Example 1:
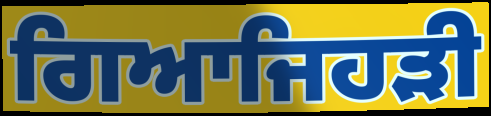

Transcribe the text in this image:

ਗਿਆਜਿਹੜੀ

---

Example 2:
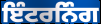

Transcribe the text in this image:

ਇੰਟਰਨਿੰਗ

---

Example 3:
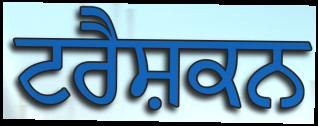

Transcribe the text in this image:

ਟਰੈਸ਼ਕਨ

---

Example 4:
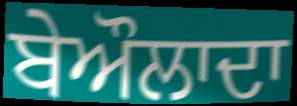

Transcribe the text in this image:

ਬੇਔਲਾਦਾ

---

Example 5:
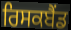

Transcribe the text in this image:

ਰਿਸਕਬੈਂਡ